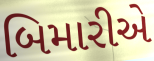
બિમારીએ